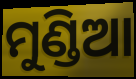
ମୁଣ୍ଡିଆ